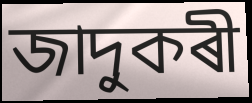
জাদুকৰী